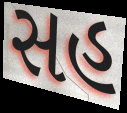
સહ